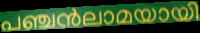
പഞ്ചൻലാമയായി